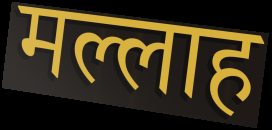
मल्लाह